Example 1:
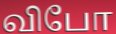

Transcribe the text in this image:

விபோ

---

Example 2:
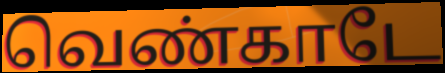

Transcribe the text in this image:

வெண்காடே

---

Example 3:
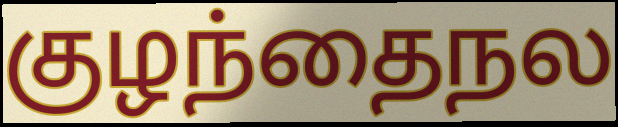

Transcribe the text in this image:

குழந்தைநல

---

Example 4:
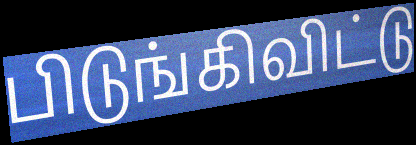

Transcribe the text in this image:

பிடுங்கிவிட்டு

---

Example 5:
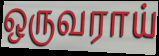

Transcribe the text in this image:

ஒருவராய்